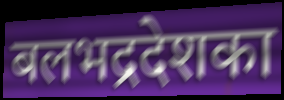
बलभद्रदेशका